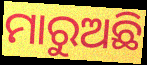
ମାରୁଅଛି